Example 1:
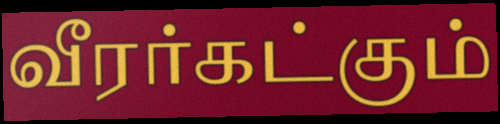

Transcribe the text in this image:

வீரர்கட்கும்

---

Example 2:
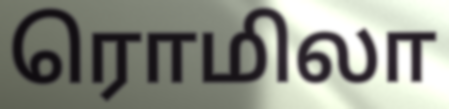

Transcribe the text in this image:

ரொமிலா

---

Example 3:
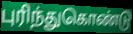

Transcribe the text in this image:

புரிந்துகொண்டு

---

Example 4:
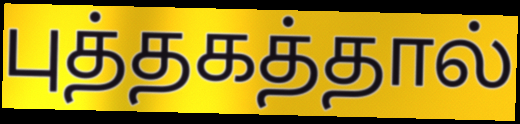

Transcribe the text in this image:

புத்தகத்தால்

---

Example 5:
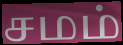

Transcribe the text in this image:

சமம்